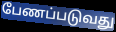
பேணப்படுவது